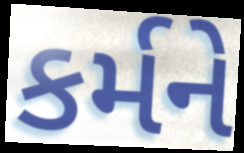
કર્મને